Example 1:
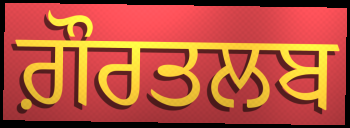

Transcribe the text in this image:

ਗ਼ੌਰਤਲਬ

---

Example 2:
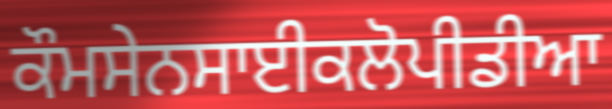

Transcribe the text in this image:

ਕੌਮਸੇਨਸਾਈਕਲੋਪੀਡੀਆ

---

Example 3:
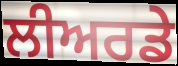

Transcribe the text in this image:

ਲੀਅਰਡੇ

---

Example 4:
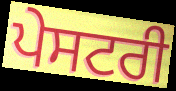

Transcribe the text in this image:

ਪੇਸਟਰੀ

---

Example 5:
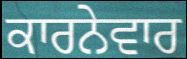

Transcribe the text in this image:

ਕਾਰਨੇਵਾਰ